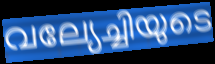
വല്യേച്ചിയുടെ